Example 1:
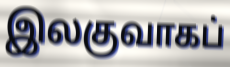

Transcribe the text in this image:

இலகுவாகப்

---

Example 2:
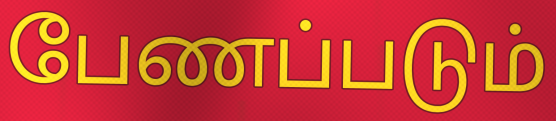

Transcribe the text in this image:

பேணப்படும்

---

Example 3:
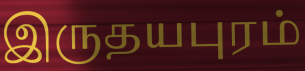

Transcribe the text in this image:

இருதயபுரம்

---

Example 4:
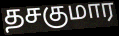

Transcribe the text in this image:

தசகுமார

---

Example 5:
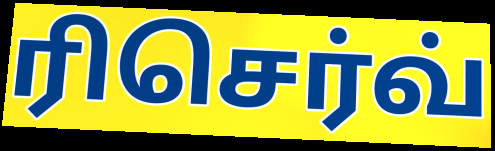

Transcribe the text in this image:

ரிசெர்வ்